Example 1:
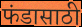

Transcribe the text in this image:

फंडासाठी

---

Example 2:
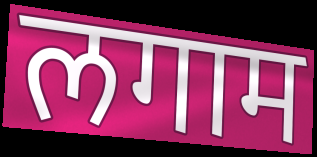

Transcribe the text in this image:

लगाम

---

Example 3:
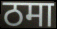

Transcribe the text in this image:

ठमा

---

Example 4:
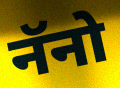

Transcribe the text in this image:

नॅनो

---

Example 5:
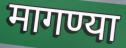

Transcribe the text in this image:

मागण्या